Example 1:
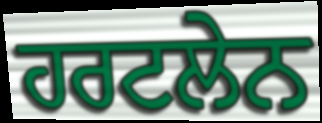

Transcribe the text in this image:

ਹਰਟਲੇਨ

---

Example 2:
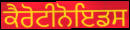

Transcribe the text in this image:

ਕੈਰੋਟੀਨੋਇਡਸ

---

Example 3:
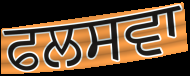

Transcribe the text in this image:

ਫਲਸਵਾ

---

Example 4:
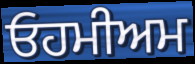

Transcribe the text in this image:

ਓਹਮੀਅਮ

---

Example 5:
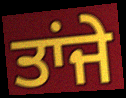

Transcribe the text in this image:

ਤਾਂਜੇ